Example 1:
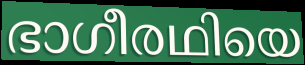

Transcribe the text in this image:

ഭാഗീരഥിയെ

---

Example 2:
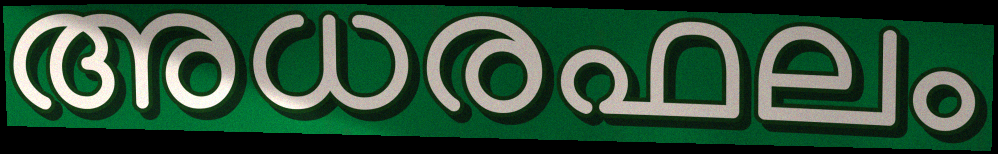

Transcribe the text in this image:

അധരഫലം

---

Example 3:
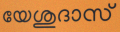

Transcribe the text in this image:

യേശുദാസ്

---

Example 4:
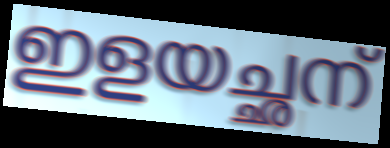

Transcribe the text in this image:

ഇളയച്ഛന്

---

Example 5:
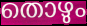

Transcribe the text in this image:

തൊഴും